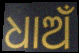
ଧାଅଁ